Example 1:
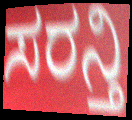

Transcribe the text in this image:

ಸರನ್ತಿ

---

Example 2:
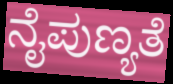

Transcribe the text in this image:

ನೈಪುಣ್ಯತೆ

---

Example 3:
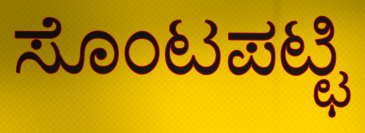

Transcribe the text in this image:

ಸೊಂಟಪಟ್ಟಿ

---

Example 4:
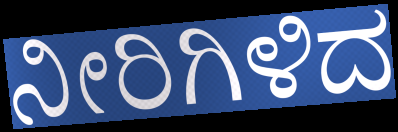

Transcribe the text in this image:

ನೀರಿಗಿಳಿದ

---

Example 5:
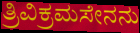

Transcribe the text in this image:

ತ್ರಿವಿಕ್ರಮಸೇನನು